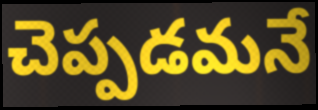
చెప్పడమనే